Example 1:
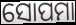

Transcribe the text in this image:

ସୋପମା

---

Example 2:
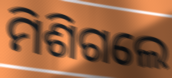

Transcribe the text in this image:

ମିଶିଗଲେ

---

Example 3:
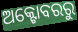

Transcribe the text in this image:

ଅକ୍ଟୋବରରୁ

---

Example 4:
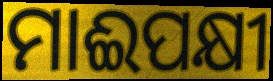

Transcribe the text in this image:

ମାଈପକ୍ଷୀ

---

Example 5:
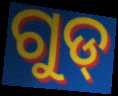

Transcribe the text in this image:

ଗୁଡ୍